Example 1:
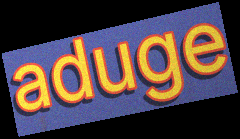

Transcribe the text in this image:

aduge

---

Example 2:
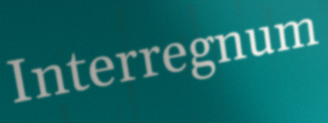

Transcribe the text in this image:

Interregnum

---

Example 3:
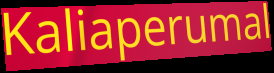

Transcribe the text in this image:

Kaliaperumal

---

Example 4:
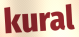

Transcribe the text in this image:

kural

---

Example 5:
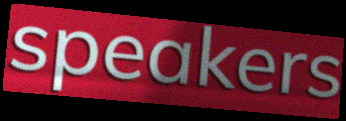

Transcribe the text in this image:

speakers